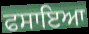
ਫਸਾਇਆ